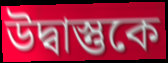
উদ্বাস্তুকে